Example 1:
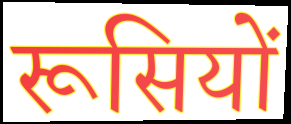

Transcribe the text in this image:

रूसियों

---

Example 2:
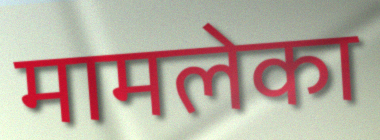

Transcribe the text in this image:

मामलेका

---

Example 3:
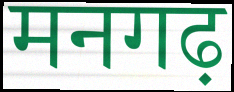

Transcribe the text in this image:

मनगढ़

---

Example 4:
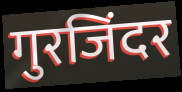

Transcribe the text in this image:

गुरजिंदर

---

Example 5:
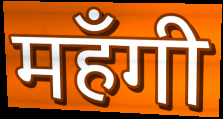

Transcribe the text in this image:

महँगी